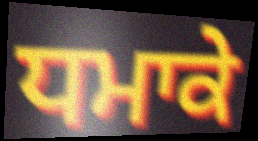
ਧਮਾਕੇ